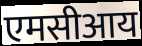
एमसीआय